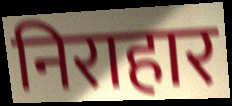
निराहार